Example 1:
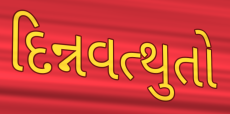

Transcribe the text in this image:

દિન્નવત્થુતો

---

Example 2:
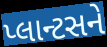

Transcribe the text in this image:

પ્લાન્ટસને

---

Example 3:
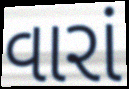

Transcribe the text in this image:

વારાં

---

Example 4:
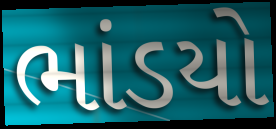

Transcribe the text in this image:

ભાંડયો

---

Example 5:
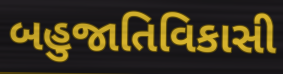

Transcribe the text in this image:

બહુજાતિવિકાસી